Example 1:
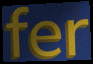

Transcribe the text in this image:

fer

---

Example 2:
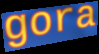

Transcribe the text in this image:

gora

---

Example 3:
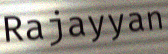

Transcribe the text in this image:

Rajayyan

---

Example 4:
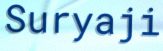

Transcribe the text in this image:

Suryaji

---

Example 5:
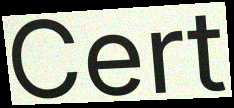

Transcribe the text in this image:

Cert